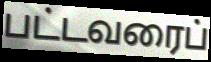
பட்டவரைப்